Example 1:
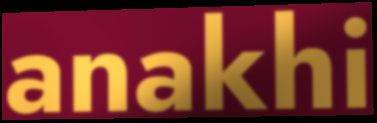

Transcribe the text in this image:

anakhi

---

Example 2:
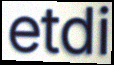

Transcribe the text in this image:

etdi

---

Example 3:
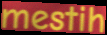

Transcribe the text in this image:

mestih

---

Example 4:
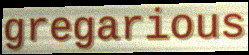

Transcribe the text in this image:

gregarious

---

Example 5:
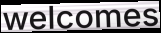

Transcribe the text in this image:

welcomes